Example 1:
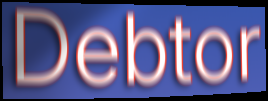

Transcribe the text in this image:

Debtor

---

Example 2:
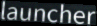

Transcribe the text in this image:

launcher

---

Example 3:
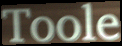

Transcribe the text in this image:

Toole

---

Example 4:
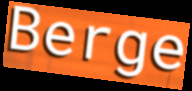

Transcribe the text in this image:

Berge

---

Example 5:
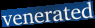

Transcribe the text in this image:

venerated